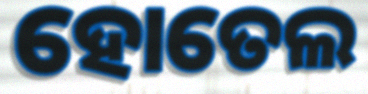
ହୋତେଲ